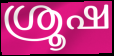
ശ്രൂഷ